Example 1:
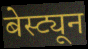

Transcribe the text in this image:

बेस्ट्यून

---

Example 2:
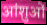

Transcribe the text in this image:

आंशुओं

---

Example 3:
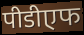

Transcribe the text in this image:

पीडीएफ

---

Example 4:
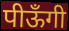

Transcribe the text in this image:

पीऊँगी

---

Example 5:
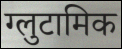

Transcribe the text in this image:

ग्लुटामिक